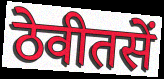
ठेवीतसें